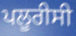
ਪਲੂਰੀਸੀ